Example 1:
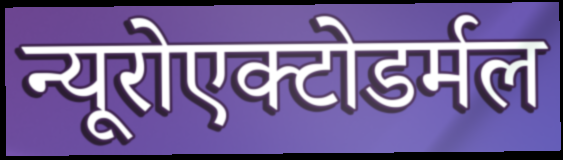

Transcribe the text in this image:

न्यूरोएक्टोडर्मल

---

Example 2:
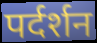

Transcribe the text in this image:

पर्दर्शन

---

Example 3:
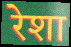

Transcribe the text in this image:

रेशा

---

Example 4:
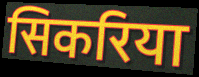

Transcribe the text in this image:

सिकरिया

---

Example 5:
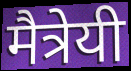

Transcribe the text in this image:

मैत्रेयी